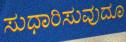
ಸುಧಾರಿಸುವುದೂ